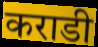
कराडी